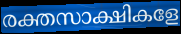
രക്തസാക്ഷികളേ